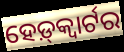
ହେଡ଼୍‌କ୍ୱାର୍ଟର